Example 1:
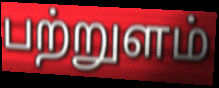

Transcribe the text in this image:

பற்றுளம்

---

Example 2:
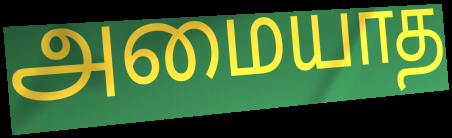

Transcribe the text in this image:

அமையாத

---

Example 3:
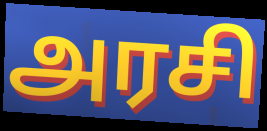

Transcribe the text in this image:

அரசி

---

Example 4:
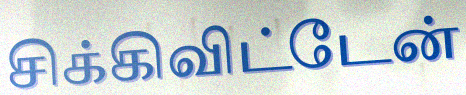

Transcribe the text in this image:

சிக்கிவிட்டேன்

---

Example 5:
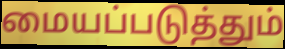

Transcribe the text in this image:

மையப்படுத்தும்